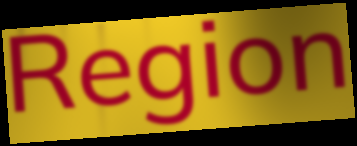
Region